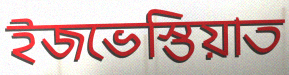
ইজভেস্তিয়াত